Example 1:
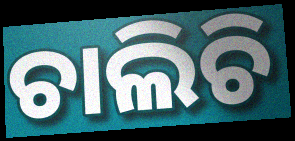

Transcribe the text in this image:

ଚାଲିଚି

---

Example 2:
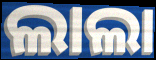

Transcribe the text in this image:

ଲାଲା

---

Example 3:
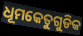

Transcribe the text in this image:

ଧୂମକେତୁଗୁଡିକ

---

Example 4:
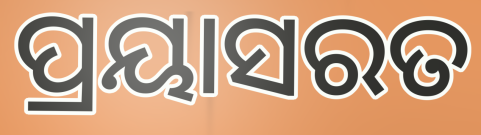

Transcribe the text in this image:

ପ୍ରୟାସରତ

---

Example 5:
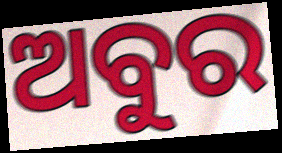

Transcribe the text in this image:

ଅବୁର